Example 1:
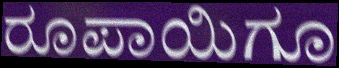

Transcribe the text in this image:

ರೂಪಾಯಿಗೂ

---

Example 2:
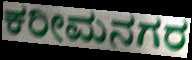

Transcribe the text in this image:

ಕರೀಮನಗರ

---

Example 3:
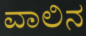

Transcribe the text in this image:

ವಾಲಿನ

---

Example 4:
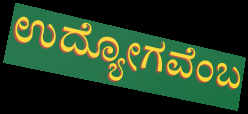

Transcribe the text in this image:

ಉದ್ಯೋಗವೆಂಬ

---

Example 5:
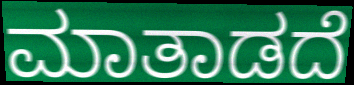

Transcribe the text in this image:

ಮಾತಾಡದೆ